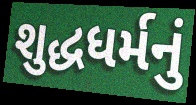
શુદ્ધધર્મનું